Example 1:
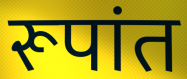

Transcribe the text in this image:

रूपांत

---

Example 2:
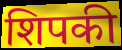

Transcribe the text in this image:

शिपकी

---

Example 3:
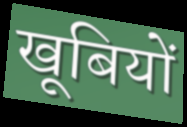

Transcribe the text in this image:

खूबियों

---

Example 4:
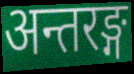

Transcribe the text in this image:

अन्तरङ्ग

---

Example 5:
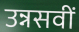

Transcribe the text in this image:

उन्नसवीं